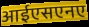
आईएसएनए